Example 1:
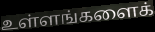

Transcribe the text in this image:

உள்ளங்களைக்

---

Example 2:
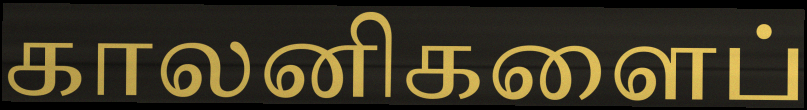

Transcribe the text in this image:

காலனிகளைப்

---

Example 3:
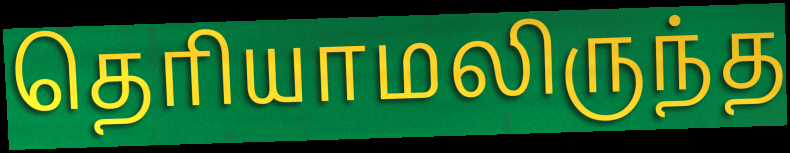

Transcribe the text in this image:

தெரியாமலிருந்த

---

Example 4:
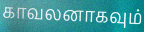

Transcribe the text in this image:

காவலனாகவும்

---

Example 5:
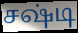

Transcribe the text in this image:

சஷ்டி